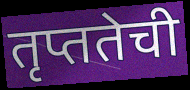
तृप्ततेची